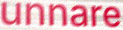
unnare